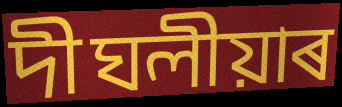
দীঘলীয়াৰ